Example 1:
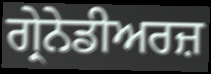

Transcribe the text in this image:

ਗ੍ਰੇਨੇਡੀਅਰਜ਼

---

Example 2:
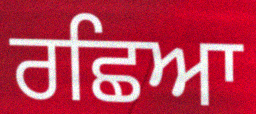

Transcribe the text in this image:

ਰਛਿਆ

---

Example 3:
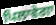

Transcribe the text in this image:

ਪਿਲਾਵੇਗਾ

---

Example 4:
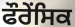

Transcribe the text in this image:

ਫੌਰੇਂਸਿਕ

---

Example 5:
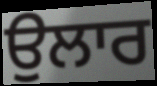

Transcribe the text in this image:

ਉਲਾਰ